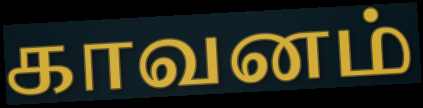
காவனம்